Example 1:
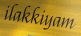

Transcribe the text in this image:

ilakkiyam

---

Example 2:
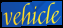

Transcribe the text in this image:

vehicle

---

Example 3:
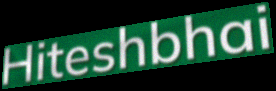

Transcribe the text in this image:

Hiteshbhai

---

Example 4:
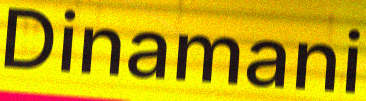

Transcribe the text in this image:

Dinamani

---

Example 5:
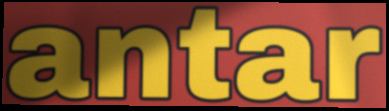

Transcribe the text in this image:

antar